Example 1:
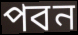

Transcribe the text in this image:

পবন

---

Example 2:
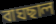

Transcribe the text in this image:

বাঘছাল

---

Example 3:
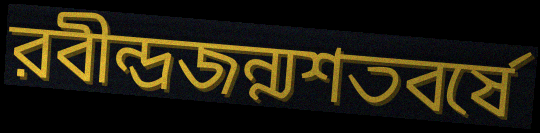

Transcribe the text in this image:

রবীন্দ্রজন্মশতবর্ষে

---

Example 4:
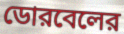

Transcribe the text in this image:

ডোরবেলের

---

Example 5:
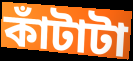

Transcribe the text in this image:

কাঁটাটা